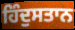
ਹਿੰਦੁਸਤਾਨ